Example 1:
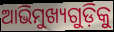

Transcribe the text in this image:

ଆଭିମୁଖ୍ୟଗୁଡ଼ିକୁ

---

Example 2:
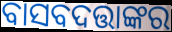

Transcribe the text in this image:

ବାସବଦତ୍ତାଙ୍କର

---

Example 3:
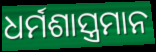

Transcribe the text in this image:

ଧର୍ମଶାସ୍ତ୍ରମାନ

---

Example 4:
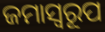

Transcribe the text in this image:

ଜମାସ୍ବରୂପ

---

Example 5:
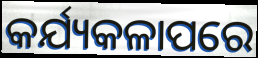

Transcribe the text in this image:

କର୍ଯ୍ୟକଳାପରେ